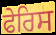
ਫੇਰਿਸ